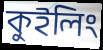
কুইলিং